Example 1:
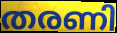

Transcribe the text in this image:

തരണി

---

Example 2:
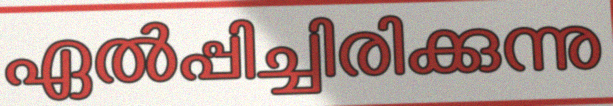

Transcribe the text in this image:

ഏൽപ്പിച്ചിരിക്കുന്നു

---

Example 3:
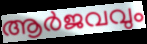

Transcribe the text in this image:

ആർജവവും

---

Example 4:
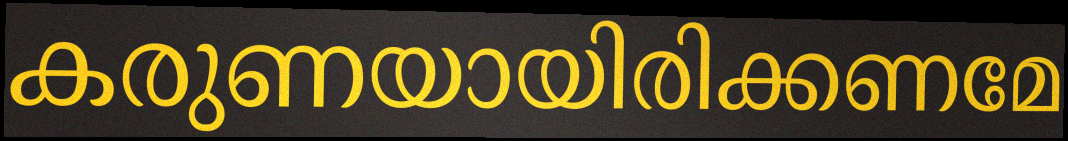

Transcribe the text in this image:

കരുണയായിരിക്കണമേ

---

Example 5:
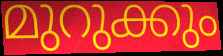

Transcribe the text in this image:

മുറുക്കും